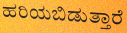
ಹರಿಯಬಿಡುತ್ತಾರೆ